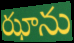
ఝాను